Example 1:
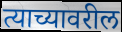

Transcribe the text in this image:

त्याच्यावरील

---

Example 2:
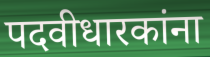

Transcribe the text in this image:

पदवीधारकांना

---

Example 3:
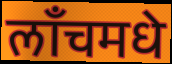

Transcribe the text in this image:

लाँचमधे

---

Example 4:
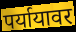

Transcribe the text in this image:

पर्यायावर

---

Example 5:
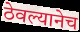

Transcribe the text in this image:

ठेवल्यानेच